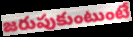
జరుపుకుంటుంటే